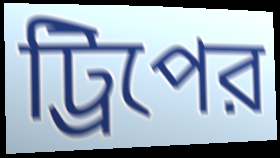
ট্রিপের